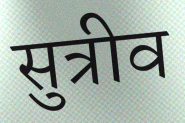
सुत्रीव